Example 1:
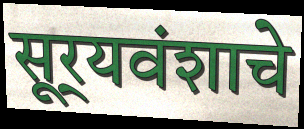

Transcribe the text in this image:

सूर्यवंशाचे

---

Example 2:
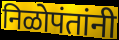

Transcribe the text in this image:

निळोपंतांनी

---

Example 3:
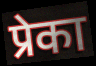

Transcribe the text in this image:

प्रेका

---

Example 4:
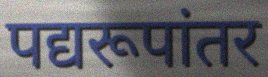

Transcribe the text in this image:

पद्यरूपांतर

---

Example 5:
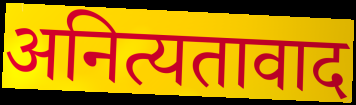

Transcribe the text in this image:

अनित्यतावाद